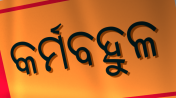
କର୍ମବହୁଳ